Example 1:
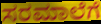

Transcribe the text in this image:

ಸರಮಾಲೆಗೆ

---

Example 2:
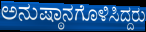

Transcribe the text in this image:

ಅನುಷ್ಠಾನಗೊಳಿಸಿದ್ದರು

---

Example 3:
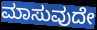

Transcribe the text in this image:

ಮಾಸುವುದೇ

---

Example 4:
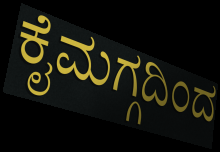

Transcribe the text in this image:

ಕೈಮಗ್ಗದಿಂದ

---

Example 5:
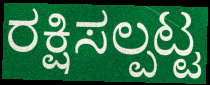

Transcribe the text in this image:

ರಕ್ಷಿಸಲ್ಪಟ್ಟ